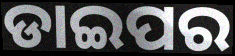
ଡାଇପର